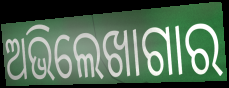
ଅଭିଲେଖାଗାର